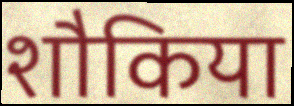
शौकिया